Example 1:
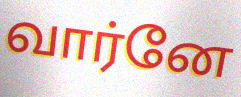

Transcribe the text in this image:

வார்னே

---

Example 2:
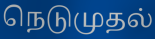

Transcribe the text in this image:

நெடுமுதல்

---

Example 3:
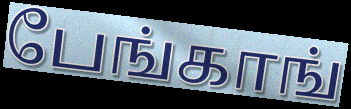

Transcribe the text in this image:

பேங்காங்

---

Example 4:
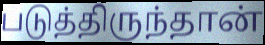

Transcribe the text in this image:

படுத்திருந்தான்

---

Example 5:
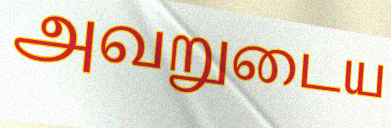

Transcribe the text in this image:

அவறுடைய